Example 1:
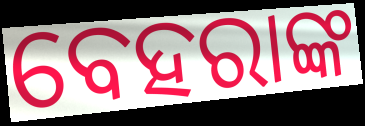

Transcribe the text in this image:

ବେହରାଙ୍କ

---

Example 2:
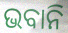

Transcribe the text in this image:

ଭବାନି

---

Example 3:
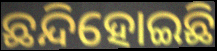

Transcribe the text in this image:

ଛନ୍ଦିହୋଇଛି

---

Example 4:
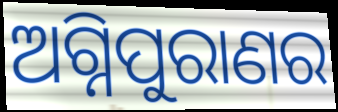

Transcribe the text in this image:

ଅଗ୍ନିପୁରାଣର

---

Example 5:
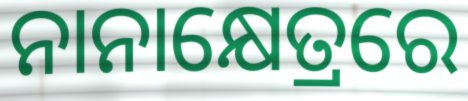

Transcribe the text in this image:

ନାନାକ୍ଷେତ୍ରରେ